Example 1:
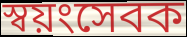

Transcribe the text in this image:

স্বয়ংসেবক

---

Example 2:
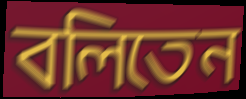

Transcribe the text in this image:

বলিতেন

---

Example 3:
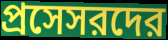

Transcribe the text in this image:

প্রসেসরদের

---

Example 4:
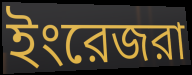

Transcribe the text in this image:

ইংরেজরা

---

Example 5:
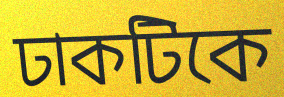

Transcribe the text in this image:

ঢাকটিকে